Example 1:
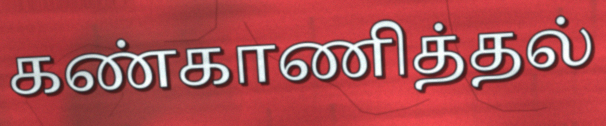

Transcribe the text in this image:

கண்காணித்தல்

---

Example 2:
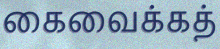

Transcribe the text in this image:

கைவைக்கத்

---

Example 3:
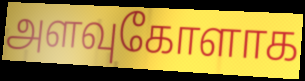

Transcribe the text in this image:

அளவுகோளாக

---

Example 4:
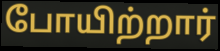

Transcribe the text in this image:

போயிற்றார்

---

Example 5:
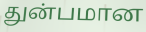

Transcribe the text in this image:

துன்பமான